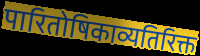
पारितोषिकाव्यतिरिक्त